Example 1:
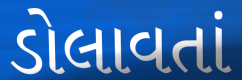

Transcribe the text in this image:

ડોલાવતાં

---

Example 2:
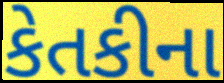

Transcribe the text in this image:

કેતકીના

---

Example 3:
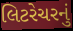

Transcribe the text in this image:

લિટરેચરનું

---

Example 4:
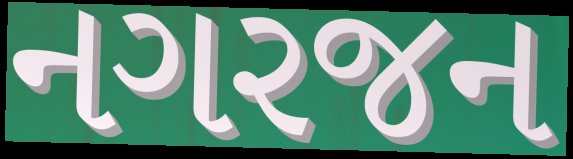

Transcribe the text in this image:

નગરજન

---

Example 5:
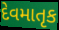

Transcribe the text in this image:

દેવમાતૃક